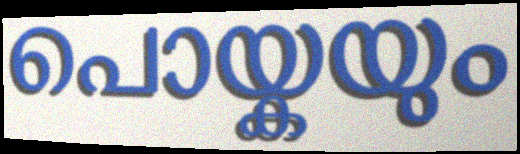
പൊയ്കയും